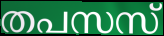
തപസസ്